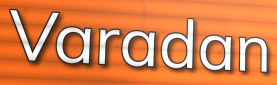
Varadan